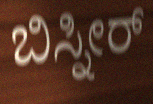
ಬಿಸ್ನೀರ್